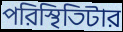
পরিস্থিতিটার